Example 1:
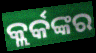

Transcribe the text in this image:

କ୍ଲର୍କଙ୍କର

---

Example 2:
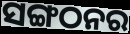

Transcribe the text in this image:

ସଙ୍ଗଠନର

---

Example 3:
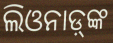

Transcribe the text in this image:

ଲିଓନାଡ଼୍‌ଙ୍କ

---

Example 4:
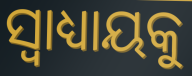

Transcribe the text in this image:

ସ୍ୱାଧ୍ୟାୟକୁ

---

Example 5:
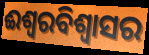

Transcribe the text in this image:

ଈଶ୍ୱରବିଶ୍ୱାସର